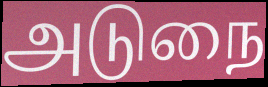
அடுநை